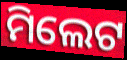
ମିଲେଟ